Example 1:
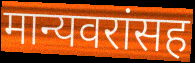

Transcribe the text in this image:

मान्यवरांसह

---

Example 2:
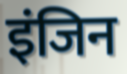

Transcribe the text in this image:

इंजिन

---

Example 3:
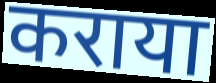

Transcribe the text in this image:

कराया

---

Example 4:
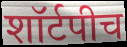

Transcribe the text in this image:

शॉर्टपीच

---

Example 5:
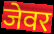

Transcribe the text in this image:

जेवर